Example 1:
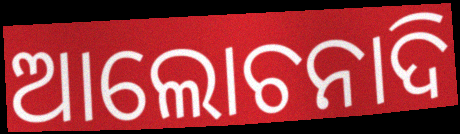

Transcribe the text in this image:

ଆଲୋଚନାଦି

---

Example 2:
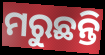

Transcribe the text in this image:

ମରୁଛନ୍ତି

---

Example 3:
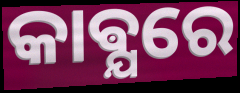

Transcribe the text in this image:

କାଵ୍ଯରେ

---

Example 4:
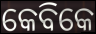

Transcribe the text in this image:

କେବିକେ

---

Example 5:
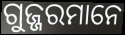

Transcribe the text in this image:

ଗୁଜ୍ଜରମାନେ